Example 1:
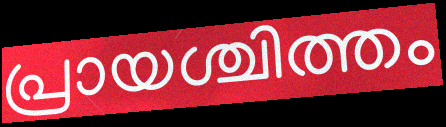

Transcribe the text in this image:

പ്രായശ്ചിത്തം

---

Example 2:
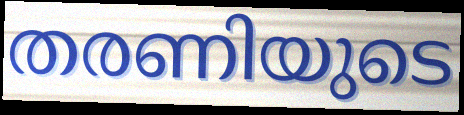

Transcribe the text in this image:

തരണിയുടെ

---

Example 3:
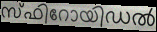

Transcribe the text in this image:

സ്ഫിറോയിഡൽ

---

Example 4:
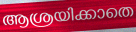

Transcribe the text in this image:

ആശ്രയിക്കാതെ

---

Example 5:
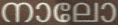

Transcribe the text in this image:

നാലോ